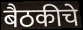
बैठकीचे